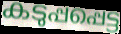
കടുപ്പപ്പെട്ട